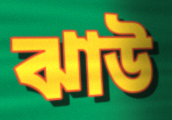
ঝাউ